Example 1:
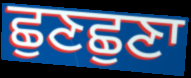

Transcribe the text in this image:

ਛੁਣਛੁਣਾ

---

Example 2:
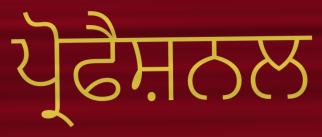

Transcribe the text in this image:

ਪ੍ਰੋਫੈਸ਼ਨਲ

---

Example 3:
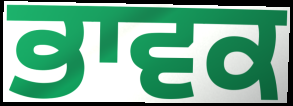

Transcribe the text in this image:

ਭਾਵਕ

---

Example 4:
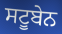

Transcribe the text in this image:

ਸਟੂਬੇਨ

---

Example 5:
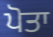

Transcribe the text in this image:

ਪੋਤਾ